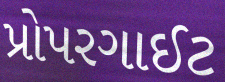
પ્રોપરગાઈટ